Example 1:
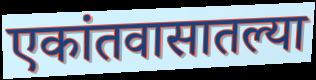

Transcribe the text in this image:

एकांतवासातल्या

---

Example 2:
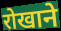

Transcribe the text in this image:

रोखाने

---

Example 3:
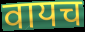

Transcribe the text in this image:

वायच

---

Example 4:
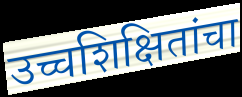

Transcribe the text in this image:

उच्चशिक्षितांचा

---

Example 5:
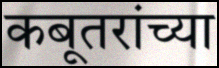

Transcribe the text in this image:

कबूतरांच्या